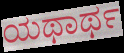
ಯಥಾರ್ಥ